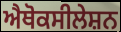
ਐਥੋਕਸੀਲੇਸ਼ਨ